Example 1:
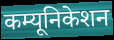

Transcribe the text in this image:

कम्यूनिकेशन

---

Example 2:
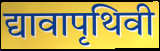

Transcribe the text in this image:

द्यावापृथिवी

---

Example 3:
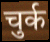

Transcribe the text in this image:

चुर्क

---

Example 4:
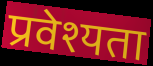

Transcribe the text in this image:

प्रवेश्यता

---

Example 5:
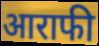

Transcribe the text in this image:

आराफी